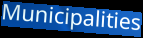
Municipalities